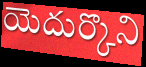
యెదుర్కొని